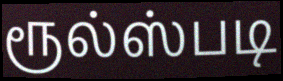
ரூல்ஸ்படி